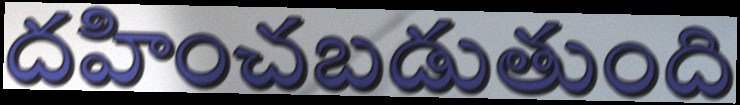
దహించబడుతుంది